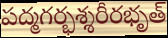
పద్మగర్భశ్శరీరభృత్